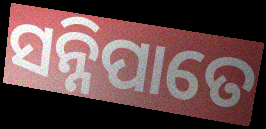
ସନ୍ନିପାତେ